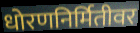
धोरणनिर्मितीवर